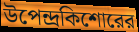
উপেন্দ্রকিশোরের